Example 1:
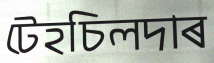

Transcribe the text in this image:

টেহচিলদাৰ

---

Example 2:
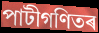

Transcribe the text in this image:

পাটীগণিতৰ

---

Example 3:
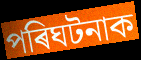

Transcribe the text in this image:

পৰিঘটনাক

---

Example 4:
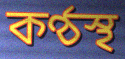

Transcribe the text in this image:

কণ্ঠস্থ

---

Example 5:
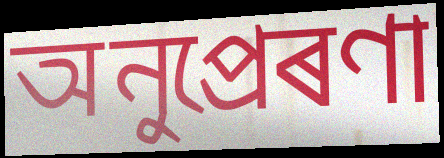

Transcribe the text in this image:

অনুপ্ৰেৰণা